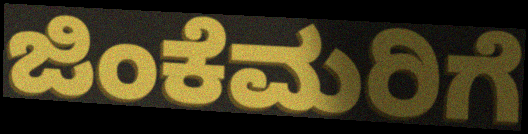
ಜಿಂಕೆಮರಿಗೆ